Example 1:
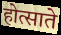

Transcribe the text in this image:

होत्साते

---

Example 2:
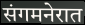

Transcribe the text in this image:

संगमनेरात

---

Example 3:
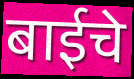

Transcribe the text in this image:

बाईचे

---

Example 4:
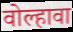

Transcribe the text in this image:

वोल्हावा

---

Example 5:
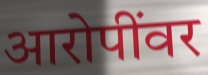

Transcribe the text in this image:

आरोपींवर